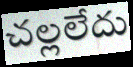
చల్లలేదు